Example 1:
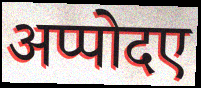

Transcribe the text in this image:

अप्पोदए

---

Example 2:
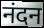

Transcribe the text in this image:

नंदन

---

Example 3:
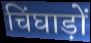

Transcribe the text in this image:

चिंघाड़ों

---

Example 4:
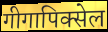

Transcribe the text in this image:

गीगापिक्सेल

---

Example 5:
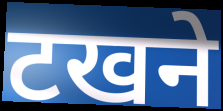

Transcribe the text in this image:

टखने